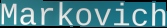
Markovich